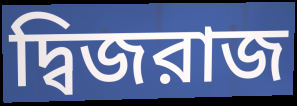
দ্বিজরাজ